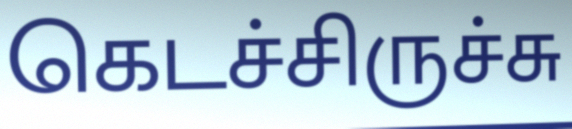
கெடச்சிருச்சு